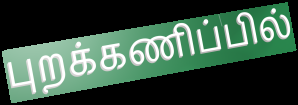
புறக்கணிப்பில்